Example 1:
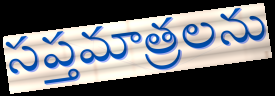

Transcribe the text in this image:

సప్తమాత్రలను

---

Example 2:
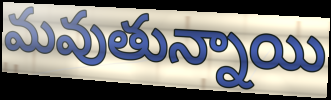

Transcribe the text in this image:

మవుతున్నాయి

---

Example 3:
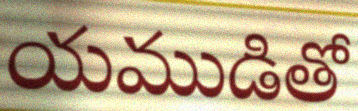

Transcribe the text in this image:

యముడితో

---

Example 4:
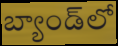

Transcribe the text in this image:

బ్యాండ్‌లో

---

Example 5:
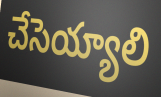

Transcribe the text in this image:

చేసెయ్యాలి